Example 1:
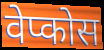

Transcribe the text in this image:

वेप्कोस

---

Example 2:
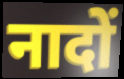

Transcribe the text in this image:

नादों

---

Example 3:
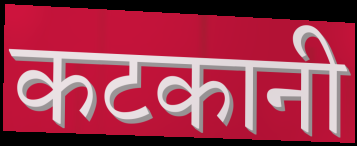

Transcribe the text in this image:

कटकानी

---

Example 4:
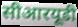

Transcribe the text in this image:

सीआरयूडी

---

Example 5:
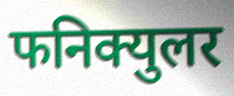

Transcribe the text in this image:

फनिक्युलर